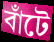
বাঁটে